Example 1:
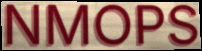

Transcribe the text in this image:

NMOPS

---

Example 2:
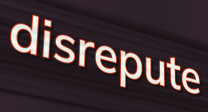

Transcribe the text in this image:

disrepute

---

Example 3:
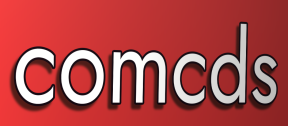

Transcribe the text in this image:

comcds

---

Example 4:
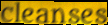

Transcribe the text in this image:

cleanses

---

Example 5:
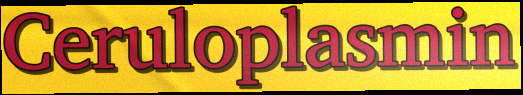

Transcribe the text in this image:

Ceruloplasmin